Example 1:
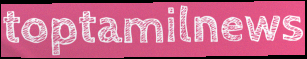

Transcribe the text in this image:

toptamilnews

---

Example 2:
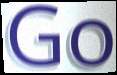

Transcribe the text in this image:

Go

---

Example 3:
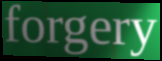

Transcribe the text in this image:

forgery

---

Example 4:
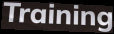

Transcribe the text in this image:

Training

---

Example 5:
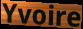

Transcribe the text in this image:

Yvoire